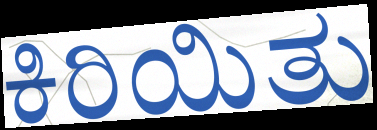
ಕಿರಿಯಿತು